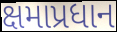
ક્ષમાપ્રધાન